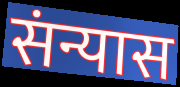
संन्यास